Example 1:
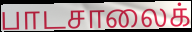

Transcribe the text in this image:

பாடசாலைக்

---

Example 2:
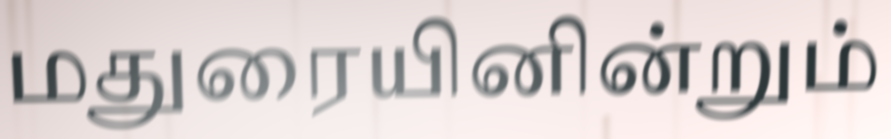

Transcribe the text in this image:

மதுரையினின்றும்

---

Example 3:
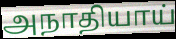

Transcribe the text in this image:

அநாதியாய்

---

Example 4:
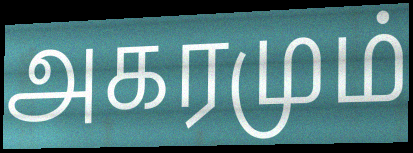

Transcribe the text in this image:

அகரமும்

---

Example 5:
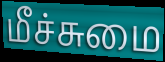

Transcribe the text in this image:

மீச்சுமை